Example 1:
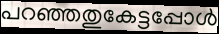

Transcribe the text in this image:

പറഞ്ഞതുകേട്ടപ്പോൾ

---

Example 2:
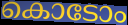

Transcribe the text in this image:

കൊടോം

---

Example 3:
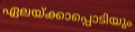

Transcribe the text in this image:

ഏലയ്ക്കാപ്പൊടിയും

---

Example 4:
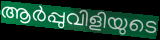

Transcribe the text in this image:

ആർപ്പുവിളിയുടെ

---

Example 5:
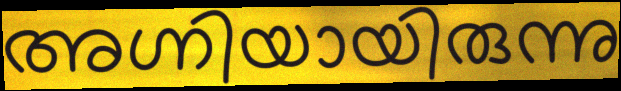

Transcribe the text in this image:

അഗ്നിയായിരുന്നു